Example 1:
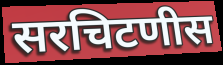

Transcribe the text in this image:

सरचिटणीस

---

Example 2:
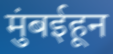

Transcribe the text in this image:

मुंबईहून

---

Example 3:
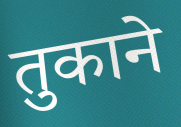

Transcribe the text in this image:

तुकाने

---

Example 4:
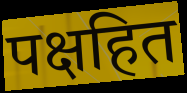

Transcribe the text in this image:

पक्षहित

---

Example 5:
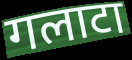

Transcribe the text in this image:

गलाटा